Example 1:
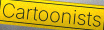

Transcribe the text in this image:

Cartoonists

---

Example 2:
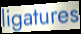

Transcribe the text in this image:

ligatures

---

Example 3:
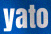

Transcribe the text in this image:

yato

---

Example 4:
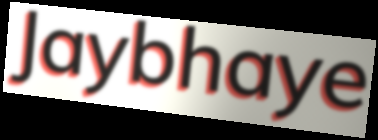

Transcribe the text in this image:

Jaybhaye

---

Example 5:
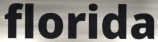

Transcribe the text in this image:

florida